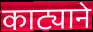
काट्याने